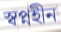
স্বপ্নহীন